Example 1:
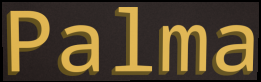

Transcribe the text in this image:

Palma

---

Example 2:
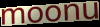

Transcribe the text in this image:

moonu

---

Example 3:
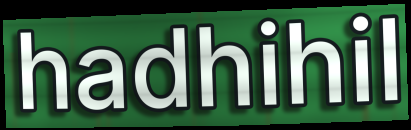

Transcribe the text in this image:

hadhihil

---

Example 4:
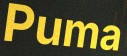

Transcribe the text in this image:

Puma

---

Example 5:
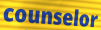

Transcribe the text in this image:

counselor